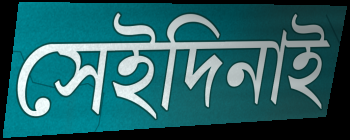
সেইদিনাই